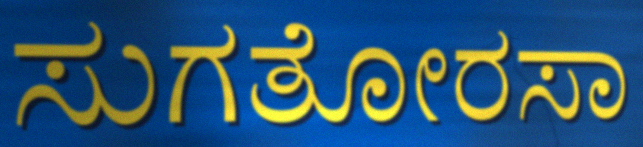
ಸುಗತೋರಸಾ